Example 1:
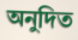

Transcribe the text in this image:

অনুদিত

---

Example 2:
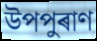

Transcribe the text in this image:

উপপুৰাণ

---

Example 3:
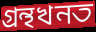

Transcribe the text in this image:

গ্ৰন্থখনত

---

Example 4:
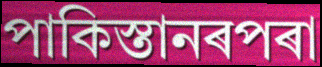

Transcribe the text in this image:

পাকিস্তানৰপৰা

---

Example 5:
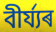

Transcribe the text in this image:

বীৰ্য্যৰ